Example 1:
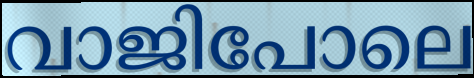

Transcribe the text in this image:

വാജിപോലെ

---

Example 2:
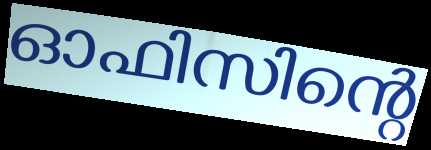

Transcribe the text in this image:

ഓഫിസിന്റെ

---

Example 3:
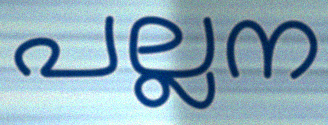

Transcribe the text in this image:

പല്ലന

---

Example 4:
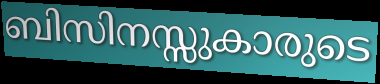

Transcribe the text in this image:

ബിസിനസ്സുകാരുടെ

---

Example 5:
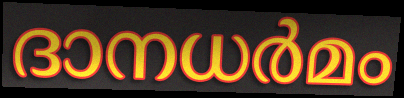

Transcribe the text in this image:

ദാനധർമം